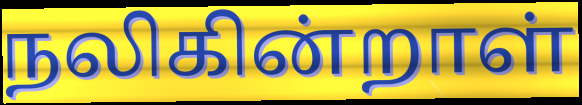
நலிகின்றாள்